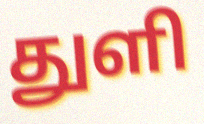
துளி